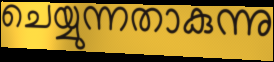
ചെയ്യുന്നതാകുന്നു